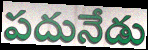
పదునేడు